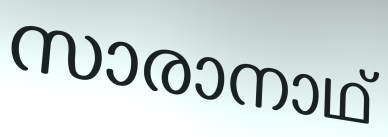
സാരാനാഥ്